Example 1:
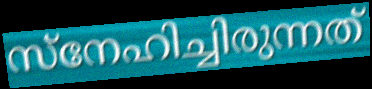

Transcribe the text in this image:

സ്നേഹിച്ചിരുന്നത്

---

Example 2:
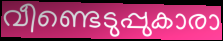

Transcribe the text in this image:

വീണ്ടെടുപ്പുകാരാ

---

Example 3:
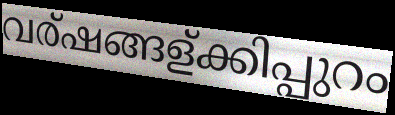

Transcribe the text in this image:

വര്ഷങ്ങള്ക്കിപ്പുറം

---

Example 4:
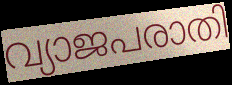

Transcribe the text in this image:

വ്യാജപരാതി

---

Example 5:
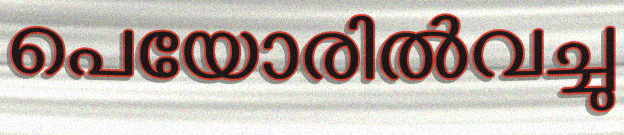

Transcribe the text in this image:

പെയോരിൽവച്ചു